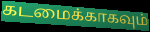
கடமைக்காகவும்